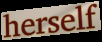
herself